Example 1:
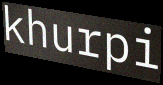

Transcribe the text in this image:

khurpi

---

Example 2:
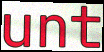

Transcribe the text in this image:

unt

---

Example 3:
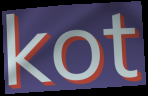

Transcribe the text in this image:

kot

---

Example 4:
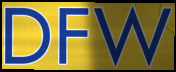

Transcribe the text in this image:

DFW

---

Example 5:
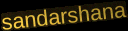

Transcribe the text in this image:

sandarshana